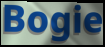
Bogie